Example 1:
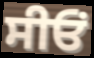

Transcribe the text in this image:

ਸੀਓਂ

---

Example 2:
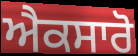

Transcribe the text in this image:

ਐਕਸਾਰੋ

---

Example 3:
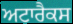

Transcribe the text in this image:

ਅਟਾਰੈਕਸ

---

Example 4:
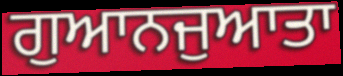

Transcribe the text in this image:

ਗੁਆਨਜੁਆਤਾ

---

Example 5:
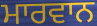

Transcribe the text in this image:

ਮਾਰਵਾਨ